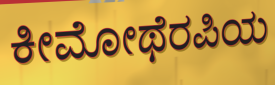
ಕೀಮೋಥೆರಪಿಯ